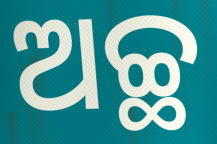
ଅଚ୍ଛ